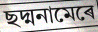
ছদ্মনামেৰে